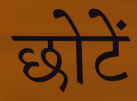
छोटें